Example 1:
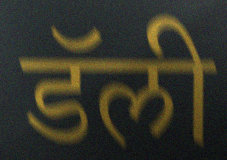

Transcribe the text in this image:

डॅली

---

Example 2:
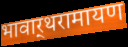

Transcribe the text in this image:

भावार्थरामायण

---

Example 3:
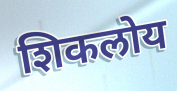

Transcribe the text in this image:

शिकलोय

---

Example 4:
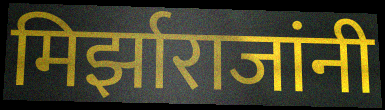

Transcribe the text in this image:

मिर्झाराजांनी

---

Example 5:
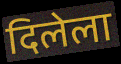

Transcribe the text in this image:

दिलेला